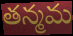
తన్మమ